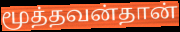
மூத்தவன்தான்